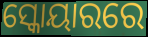
ସ୍କୋୟାରରେ